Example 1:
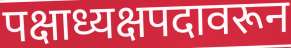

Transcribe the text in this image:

पक्षाध्यक्षपदावरून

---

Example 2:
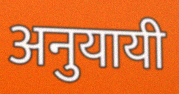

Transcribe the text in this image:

अनुयायी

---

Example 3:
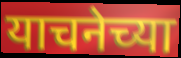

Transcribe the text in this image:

याचनेच्या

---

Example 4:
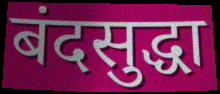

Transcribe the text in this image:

बंदसुद्धा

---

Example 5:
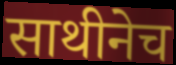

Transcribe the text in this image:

साथीनेच